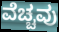
ವೆಚ್ಚವು